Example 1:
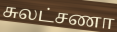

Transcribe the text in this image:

சுலட்சணா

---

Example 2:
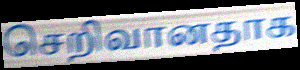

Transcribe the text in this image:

செறிவானதாக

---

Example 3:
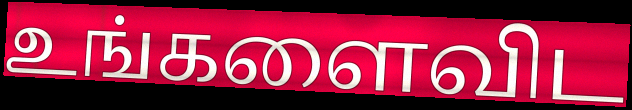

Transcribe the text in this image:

உங்களைவிட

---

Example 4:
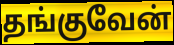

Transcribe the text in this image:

தங்குவேன்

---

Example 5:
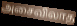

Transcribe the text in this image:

அசைவிலாத